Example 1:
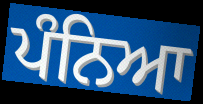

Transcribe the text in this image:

ਪੰਨਿਆ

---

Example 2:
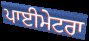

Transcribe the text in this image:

ਪਾਈਮੇਟਰਾ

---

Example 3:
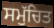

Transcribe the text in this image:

ਸਮੁੱਚਿਤ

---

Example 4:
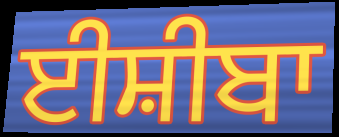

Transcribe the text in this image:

ਈਸ਼ੀਬਾ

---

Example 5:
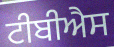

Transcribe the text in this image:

ਟੀਬੀਐਸ